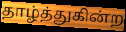
தாழ்த்துகின்ற